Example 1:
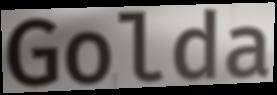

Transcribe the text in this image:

Golda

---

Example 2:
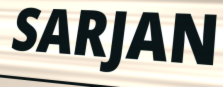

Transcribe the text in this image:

SARJAN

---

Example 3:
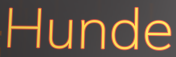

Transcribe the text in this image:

Hunde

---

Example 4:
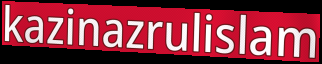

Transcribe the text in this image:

kazinazrulislam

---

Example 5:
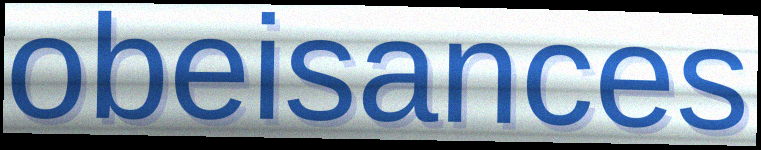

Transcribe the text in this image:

obeisances